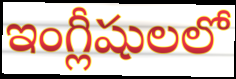
ఇంగ్లీషులలో